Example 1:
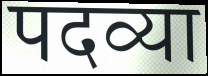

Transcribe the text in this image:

पदव्या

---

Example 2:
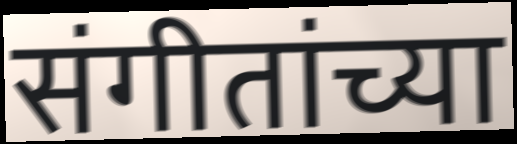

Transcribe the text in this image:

संगीतांच्या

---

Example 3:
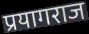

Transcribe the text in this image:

प्रयागराज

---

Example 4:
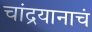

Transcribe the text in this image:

चांद्रयानाचं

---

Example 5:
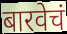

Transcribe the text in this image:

बारवेचं